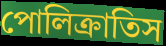
পোলিক্রাতিস